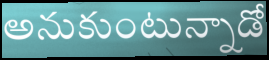
అనుకుంటున్నాడో